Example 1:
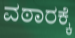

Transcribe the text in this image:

ವಠಾರಕ್ಕೆ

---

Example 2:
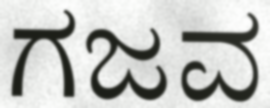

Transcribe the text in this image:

ಗಜವ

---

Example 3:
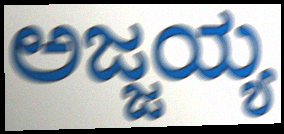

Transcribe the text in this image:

ಅಜ್ಜಯ್ಯ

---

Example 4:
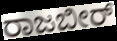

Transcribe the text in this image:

ರಾಜಬೀರ್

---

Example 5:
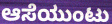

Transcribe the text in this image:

ಆಸೆಯುಂಟು